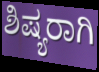
ಶಿಷ್ಯರಾಗಿ